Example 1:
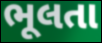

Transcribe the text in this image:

ભૂલતા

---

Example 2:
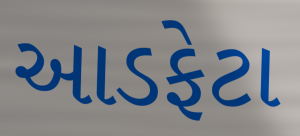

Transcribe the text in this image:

આડફેટા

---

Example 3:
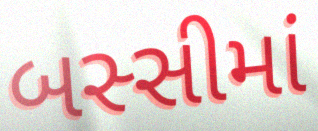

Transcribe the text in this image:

બસ્સીમાં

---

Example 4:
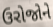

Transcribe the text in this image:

ઉરોજોને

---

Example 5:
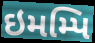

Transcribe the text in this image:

ઇમમ્પિ